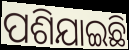
ପଶିଯାଇଛି